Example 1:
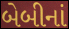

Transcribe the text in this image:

બેબીનાં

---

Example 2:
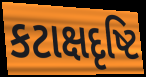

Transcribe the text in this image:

કટાક્ષદૃષ્ટિ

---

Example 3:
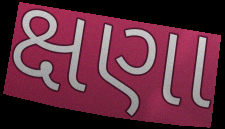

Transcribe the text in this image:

ક્ષણા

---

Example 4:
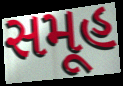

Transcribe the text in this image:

સમૂહ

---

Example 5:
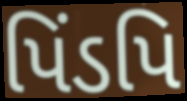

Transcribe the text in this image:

પિંડપિ